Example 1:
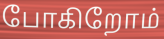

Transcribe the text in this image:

போகிறோம்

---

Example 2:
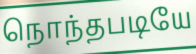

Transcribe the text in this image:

நொந்தபடியே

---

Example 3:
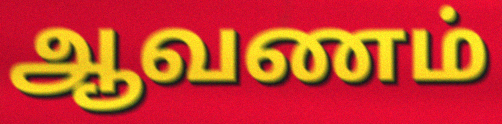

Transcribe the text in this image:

ஆவணம்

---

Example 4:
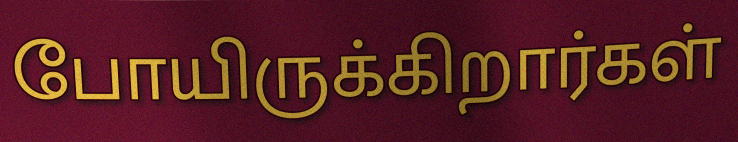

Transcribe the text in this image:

போயிருக்கிறார்கள்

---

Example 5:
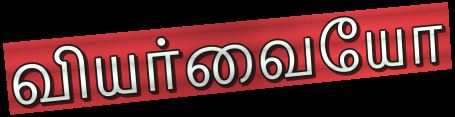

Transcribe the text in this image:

வியர்வையோ